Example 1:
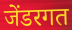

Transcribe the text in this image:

जेंडरगत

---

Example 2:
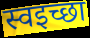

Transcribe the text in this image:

स्वइच्छा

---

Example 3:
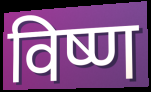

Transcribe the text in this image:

विष्ण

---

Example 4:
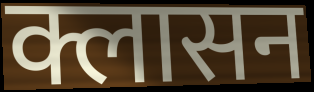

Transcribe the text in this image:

क्लासन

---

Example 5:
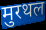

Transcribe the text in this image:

मुरथल